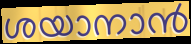
ശയാനാൻ